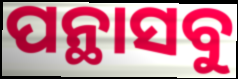
ପନ୍ଥାସବୁ